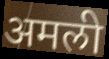
अमली